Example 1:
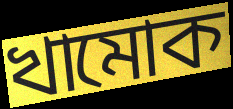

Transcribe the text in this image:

খামোক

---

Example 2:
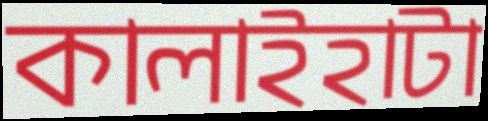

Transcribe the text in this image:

কালাইহাটা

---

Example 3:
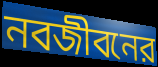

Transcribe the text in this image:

নবজীবনের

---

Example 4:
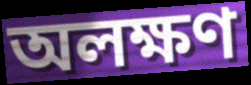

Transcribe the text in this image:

অলক্ষণ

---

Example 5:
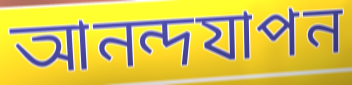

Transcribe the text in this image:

আনন্দযাপন